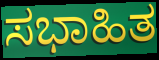
ಸಭಾಹಿತ